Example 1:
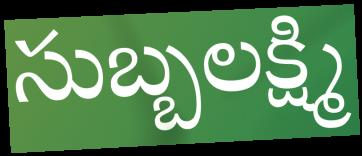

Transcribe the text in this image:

సుబ్బలక్ష్మి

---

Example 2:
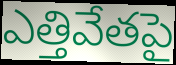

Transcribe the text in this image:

ఎత్తివేతపై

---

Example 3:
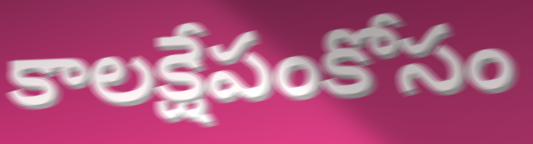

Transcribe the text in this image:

కాలక్షేపంకోసం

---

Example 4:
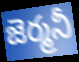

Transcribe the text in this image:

జెర్మనీ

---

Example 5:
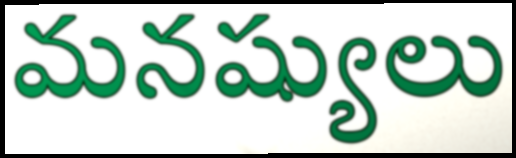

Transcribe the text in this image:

మనష్యులు